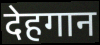
देहगान